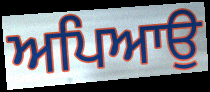
ਅਪਿਆਉ